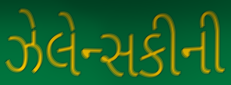
ઝેલેન્સકીની